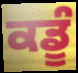
ਕਡੂੰ